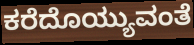
ಕರೆದೊಯ್ಯುವಂತೆ